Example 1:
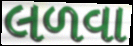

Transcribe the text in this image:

લળવા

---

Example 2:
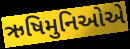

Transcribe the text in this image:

ઋષિમુનિઓએ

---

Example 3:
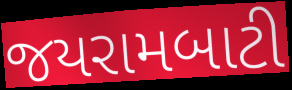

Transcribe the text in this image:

જયરામબાટી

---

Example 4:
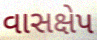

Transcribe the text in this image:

વાસક્ષેપ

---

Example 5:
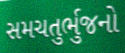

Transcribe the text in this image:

સમચતુર્ભુજનો